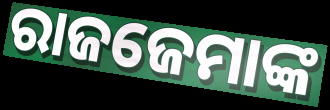
ରାଜଜେମାଙ୍କ